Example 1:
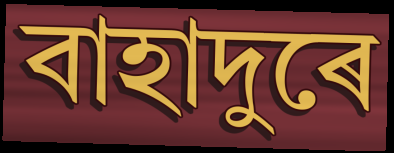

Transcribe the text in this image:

বাহাদুৰে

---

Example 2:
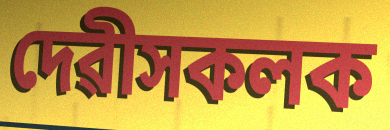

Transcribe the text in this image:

দেৱীসকলক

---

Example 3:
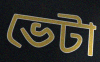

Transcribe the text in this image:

ভেটা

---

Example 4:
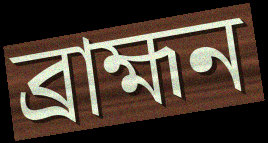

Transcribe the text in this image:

ব্ৰাহ্মন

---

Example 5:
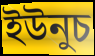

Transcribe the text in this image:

ইউনুচ